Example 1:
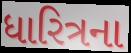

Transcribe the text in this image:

ધારિત્રના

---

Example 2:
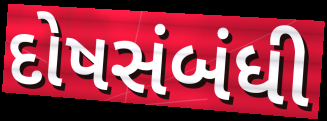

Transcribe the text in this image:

દોષસંબંધી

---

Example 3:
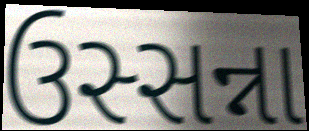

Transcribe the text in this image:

ઉસ્સન્ના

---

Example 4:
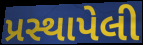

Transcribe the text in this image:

પ્રસ્થાપેલી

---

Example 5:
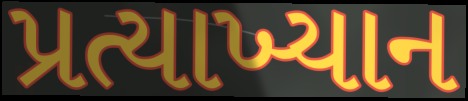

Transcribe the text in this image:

પ્રત્યાખ્યાન